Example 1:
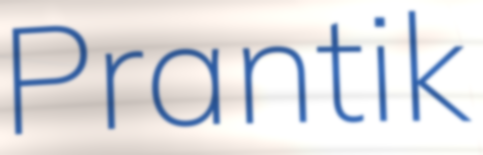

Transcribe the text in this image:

Prantik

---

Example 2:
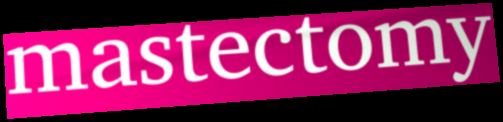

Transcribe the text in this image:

mastectomy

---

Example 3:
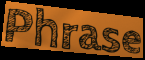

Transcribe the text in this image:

Phrase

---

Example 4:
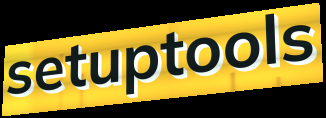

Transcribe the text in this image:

setuptools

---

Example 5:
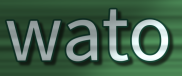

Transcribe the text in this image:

wato